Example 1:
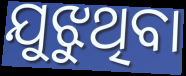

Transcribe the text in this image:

ଯୁଝୁଥିବା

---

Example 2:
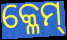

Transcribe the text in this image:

କ୍ଳେମ୍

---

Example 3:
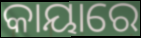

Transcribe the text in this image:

କାୟାରେ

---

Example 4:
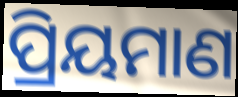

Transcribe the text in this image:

ପ୍ରିୟମାଣ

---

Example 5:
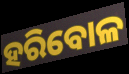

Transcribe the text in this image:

ହରିବୋଳ